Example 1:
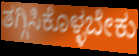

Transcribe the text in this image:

ತಗ್ಗಿಸಿಕೊಳ್ಳಬೇಕು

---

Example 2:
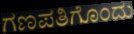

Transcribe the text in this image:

ಗಣಪತಿಗೊಂದು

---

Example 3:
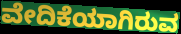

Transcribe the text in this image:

ವೇದಿಕೆಯಾಗಿರುವ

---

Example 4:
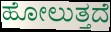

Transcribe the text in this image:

ಹೋಲುತ್ತದೆ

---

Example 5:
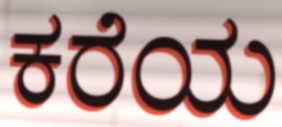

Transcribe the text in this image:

ಕರೆಯ